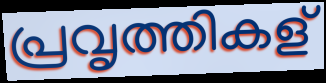
പ്രവൃത്തികള്